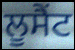
ਲੂਸੈਂਟ